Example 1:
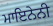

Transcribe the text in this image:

ਮਾਇਨੇਨੀ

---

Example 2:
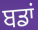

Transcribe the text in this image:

ਬਡਾਂ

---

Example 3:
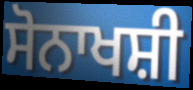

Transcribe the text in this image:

ਸੋਨਾਖਸ਼ੀ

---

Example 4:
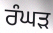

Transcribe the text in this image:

ਰੰਘੜ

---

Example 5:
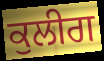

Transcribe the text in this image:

ਕੁਲੀਗ